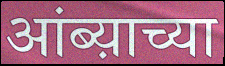
आंब्य़ाच्या